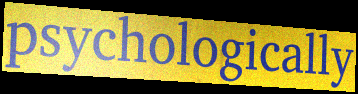
psychologically